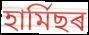
হাৰ্মিছৰ